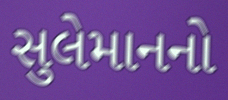
સુલેમાનનો